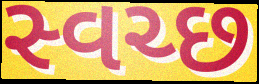
સ્વચ્છ